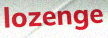
lozenge